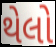
થેલો